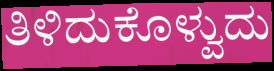
ತಿಳಿದುಕೊಳ್ವುದು